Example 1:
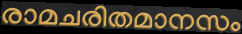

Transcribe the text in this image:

രാമചരിതമാനസം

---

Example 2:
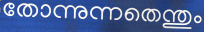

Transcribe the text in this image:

തോന്നുന്നതെന്തും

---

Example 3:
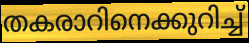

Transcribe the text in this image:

തകരാറിനെക്കുറിച്ച്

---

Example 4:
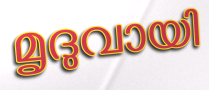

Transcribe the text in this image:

മൃദുവായി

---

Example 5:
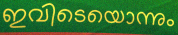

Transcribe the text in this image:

ഇവിടെയൊന്നും